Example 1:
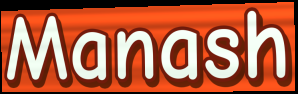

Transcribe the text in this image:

Manash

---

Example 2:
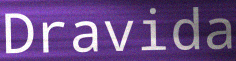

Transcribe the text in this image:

Dravida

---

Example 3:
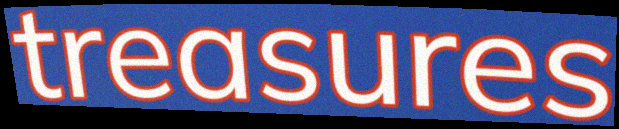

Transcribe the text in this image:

treasures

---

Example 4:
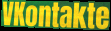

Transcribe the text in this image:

VKontakte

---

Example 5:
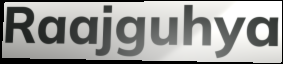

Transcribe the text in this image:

Raajguhya